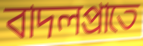
বাদলপ্রাতে